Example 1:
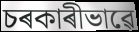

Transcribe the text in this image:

চৰকাৰীভাৱে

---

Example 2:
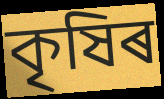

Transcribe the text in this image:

কৃষিৰ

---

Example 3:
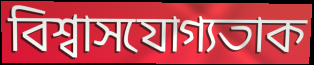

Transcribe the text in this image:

বিশ্বাসযোগ্যতাক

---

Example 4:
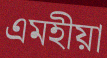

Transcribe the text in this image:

এমহীয়া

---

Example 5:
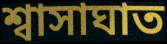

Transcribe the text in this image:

শ্বাসাঘাত